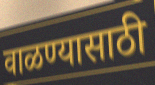
वाळण्यासाठी